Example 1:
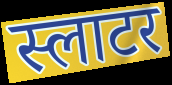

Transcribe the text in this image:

स्लाटर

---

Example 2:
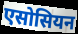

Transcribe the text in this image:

एसोसियन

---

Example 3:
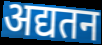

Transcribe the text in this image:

अद्यतन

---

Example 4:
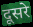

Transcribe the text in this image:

दूसरे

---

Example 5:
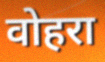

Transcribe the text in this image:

वोहरा